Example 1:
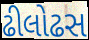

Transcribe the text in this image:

ઢીલોઢસ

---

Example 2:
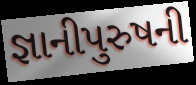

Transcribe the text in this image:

જ્ઞાનીપુરુષની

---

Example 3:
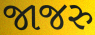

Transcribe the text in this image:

જાજરુ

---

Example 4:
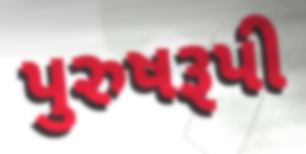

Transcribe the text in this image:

પુરુષરૂપી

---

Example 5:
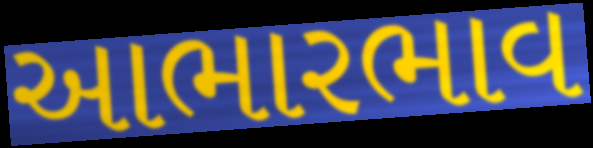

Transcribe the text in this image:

આભારભાવ